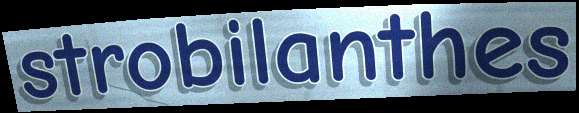
strobilanthes